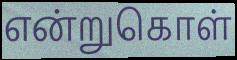
என்றுகொள்